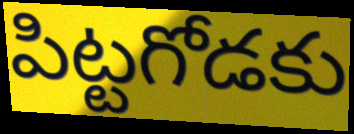
పిట్టగోడకు